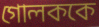
গোলককে